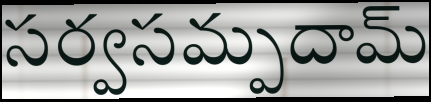
సర్వసమ్పదామ్